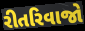
રીતરિવાજો